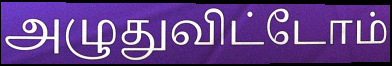
அழுதுவிட்டோம்